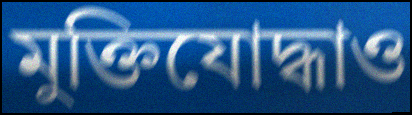
মুক্তিযোদ্ধাও